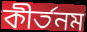
কীর্তনম